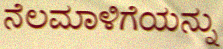
ನೆಲಮಾಳಿಗೆಯನ್ನು